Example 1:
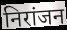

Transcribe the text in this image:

निरांजन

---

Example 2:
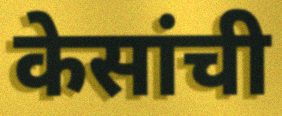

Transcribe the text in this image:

केसांची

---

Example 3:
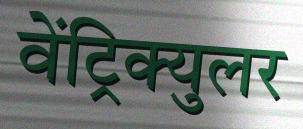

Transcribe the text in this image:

वेंट्रिक्युलर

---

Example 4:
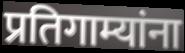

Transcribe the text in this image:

प्रतिगाम्यांना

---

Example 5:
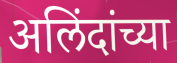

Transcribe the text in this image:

अलिंदांच्या